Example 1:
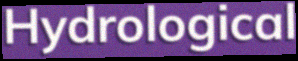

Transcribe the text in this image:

Hydrological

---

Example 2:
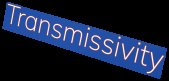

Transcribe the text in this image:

Transmissivity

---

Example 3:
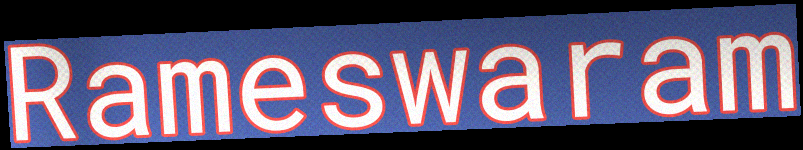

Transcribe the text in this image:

Rameswaram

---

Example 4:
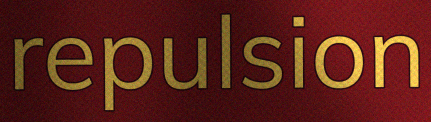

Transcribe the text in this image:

repulsion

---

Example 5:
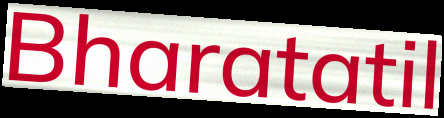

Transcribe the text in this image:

Bharatatil